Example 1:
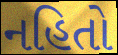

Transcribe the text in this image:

નહિતો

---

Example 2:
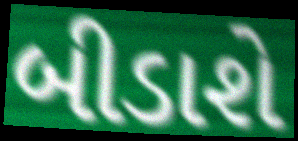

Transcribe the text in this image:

બીડાશે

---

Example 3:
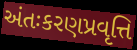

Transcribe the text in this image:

અંતઃકરણપ્રવૃત્તિ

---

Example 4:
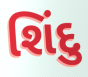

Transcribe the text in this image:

શિંદુ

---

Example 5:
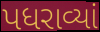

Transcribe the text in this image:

પધરાવ્યાં